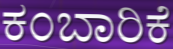
ಕಂಬಾರಿಕೆ